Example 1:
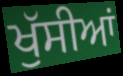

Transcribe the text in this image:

ਖੁੱਸੀਆਂ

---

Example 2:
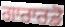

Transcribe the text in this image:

ਗਾਰਾਰਡੋ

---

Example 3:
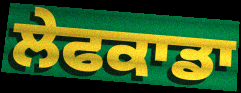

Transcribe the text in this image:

ਲੇਫਕਾਡਾ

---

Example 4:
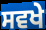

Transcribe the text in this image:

ਸਵਖੇ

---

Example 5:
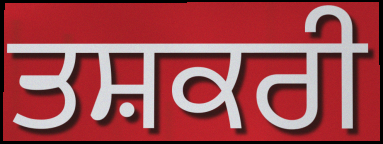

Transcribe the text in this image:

ਤਸ਼ਕਰੀ